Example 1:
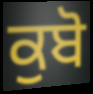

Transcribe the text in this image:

ਕੁਬੋ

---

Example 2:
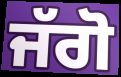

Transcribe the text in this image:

ਜੱਗੋ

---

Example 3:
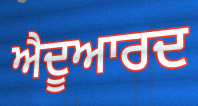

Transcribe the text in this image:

ਐਦੂਆਰਦ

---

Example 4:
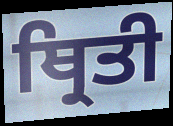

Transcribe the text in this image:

ਥ੍ਰਿਤੀ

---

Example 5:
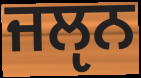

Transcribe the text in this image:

ਜਲੵਨ